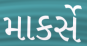
માકર્સે